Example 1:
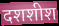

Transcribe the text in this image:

दशशीश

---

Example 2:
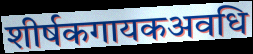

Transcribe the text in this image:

शीर्षकगायकअवधि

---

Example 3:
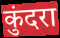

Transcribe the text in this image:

कुंदरा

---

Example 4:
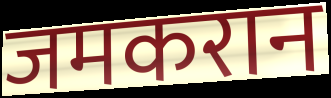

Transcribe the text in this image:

जमकरान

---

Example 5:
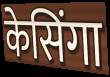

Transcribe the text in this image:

केसिंगा